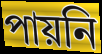
পায়নি